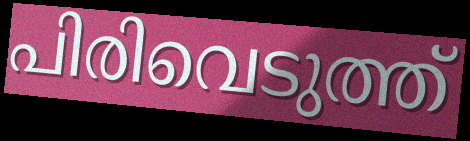
പിരിവെടുത്ത്